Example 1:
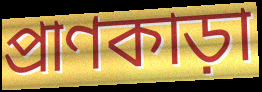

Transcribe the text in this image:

প্রাণকাড়া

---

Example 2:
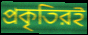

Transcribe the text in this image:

প্রকৃতিরই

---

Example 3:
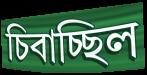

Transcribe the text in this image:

চিবাচ্ছিল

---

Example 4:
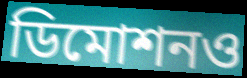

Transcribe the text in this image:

ডিমোশনও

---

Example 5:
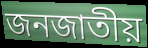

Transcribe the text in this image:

জনজাতীয়